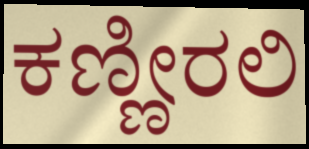
ಕಣ್ಣೀರಲಿ